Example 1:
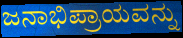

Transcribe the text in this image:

ಜನಾಭಿಪ್ರಾಯವನ್ನು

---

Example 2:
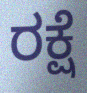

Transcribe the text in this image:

ರಕ್ಷೆ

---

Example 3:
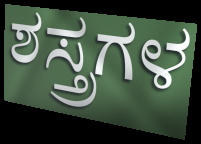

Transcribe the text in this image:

ಶಸ್ತ್ರಗಳ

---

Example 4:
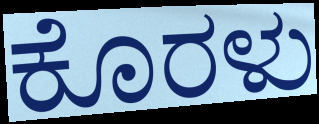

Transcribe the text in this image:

ಕೊರಳು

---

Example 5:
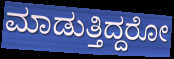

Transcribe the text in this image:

ಮಾಡುತ್ತಿದ್ದರೋ